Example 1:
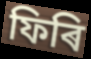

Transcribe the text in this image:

ফিৰি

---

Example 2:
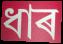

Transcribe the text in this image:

ধাৰ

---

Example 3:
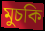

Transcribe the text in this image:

মুচকি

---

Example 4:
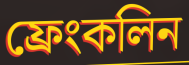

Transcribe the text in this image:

ফ্ৰেংকলিন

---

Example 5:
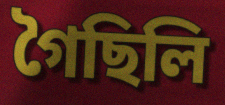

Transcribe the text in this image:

গৈছিলি